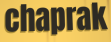
chaprak